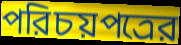
পরিচয়পত্রের